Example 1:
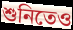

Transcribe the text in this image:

শুনিতেও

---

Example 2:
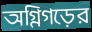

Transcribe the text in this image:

অগ্নিগড়ের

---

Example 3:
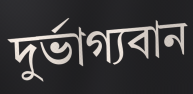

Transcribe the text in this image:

দুর্ভাগ্যবান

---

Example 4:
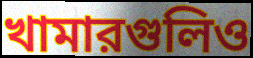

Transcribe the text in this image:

খামারগুলিও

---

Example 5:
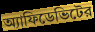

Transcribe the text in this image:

অ্যাফিডেভিটের